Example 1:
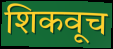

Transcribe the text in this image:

शिकवूच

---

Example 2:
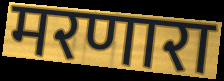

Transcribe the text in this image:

मरणारा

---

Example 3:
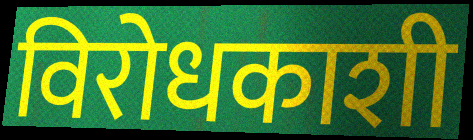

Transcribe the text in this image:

विरोधकाशी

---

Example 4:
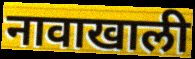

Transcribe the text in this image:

नावाखाली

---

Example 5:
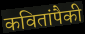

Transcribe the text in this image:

कवितांपैकी